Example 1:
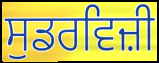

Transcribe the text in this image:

ਸੁਡਰਵਿਜ਼ੀ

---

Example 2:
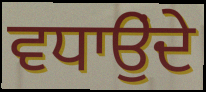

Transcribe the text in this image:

ਵਧਾਉੁਂਦੇ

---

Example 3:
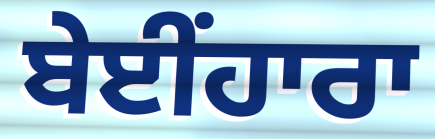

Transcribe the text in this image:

ਬੇਈਂਹਾਰਾ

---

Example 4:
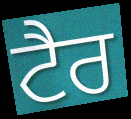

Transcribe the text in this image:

ਟੈਰ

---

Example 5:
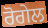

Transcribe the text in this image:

ਰੋਗੇਲ